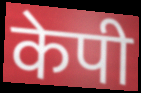
केपी